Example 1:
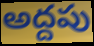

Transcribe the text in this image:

అద్దపు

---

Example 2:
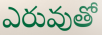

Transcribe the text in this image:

ఎరువుతో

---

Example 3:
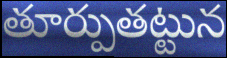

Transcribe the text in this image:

తూర్పుతట్టున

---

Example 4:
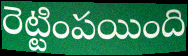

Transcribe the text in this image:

రెట్టింపయింది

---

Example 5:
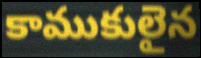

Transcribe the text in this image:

కాముకులైన